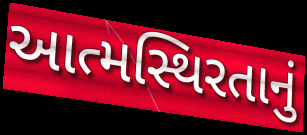
આત્મસ્થિરતાનું